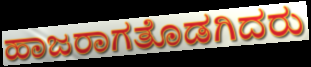
ಹಾಜರಾಗತೊಡಗಿದರು